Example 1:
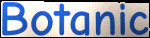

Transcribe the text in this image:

Botanic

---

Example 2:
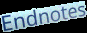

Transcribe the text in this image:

Endnotes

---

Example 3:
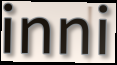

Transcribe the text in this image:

inni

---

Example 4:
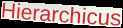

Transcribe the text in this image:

Hierarchicus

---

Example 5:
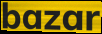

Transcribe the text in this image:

bazar